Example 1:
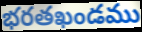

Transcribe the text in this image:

భరతఖండము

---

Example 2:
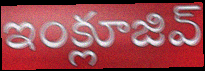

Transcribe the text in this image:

ఇంక్లూజివ్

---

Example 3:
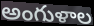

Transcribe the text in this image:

అంగుళాల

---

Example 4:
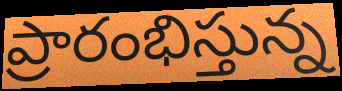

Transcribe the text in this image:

ప్రారంభిస్తున్న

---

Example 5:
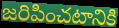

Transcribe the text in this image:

జరిపించటానికి